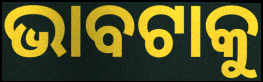
ଭାବଟାକୁ